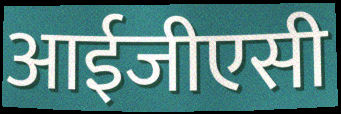
आईजीएसी